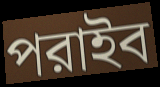
পরাইব